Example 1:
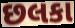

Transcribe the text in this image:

છલકા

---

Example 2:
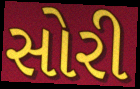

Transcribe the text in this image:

સોરી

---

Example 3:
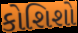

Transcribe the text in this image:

કોશિશો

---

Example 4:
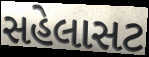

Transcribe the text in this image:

સહેલાસટ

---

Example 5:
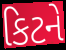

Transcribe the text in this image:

કિટને